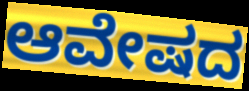
ಆವೇಷದ